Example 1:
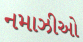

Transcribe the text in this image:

નમાઝીઓ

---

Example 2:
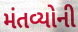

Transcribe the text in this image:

મંતવ્યોની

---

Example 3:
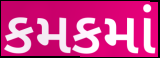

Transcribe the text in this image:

કમકમાં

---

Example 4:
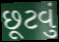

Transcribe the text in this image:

છૂટવું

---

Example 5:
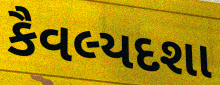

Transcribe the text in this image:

કૈવલ્યદશા